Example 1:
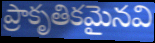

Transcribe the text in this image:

ప్రాకృతికమైనవి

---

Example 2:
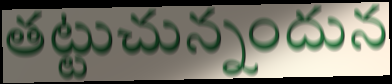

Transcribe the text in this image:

తట్టుచున్నందున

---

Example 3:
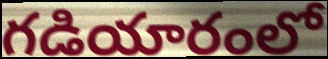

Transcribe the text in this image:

గడియారంలో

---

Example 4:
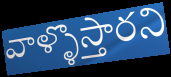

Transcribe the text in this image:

వాళ్ళొస్తారని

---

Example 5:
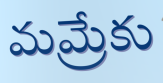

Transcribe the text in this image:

మమ్రేకు